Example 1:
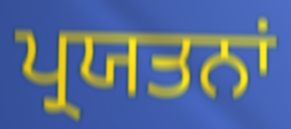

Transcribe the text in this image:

ਪ੍ਰਯਤਨਾਂ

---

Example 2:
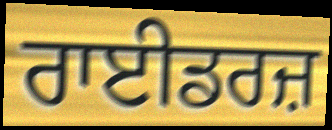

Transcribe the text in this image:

ਰਾਈਡਰਜ਼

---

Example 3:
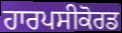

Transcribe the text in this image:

ਹਾਰਪਸੀਕੋਰਡ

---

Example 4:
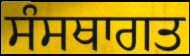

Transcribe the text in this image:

ਸੰਸਥਾਗਤ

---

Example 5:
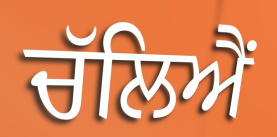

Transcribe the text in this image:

ਚੱਲਿਐਂ